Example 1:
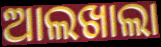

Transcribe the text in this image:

ଆଲଖାଲା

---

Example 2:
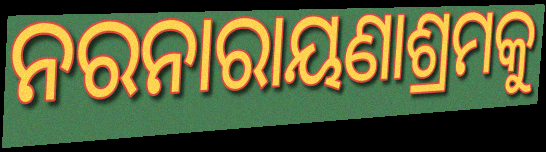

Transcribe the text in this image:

ନରନାରାୟଣାଶ୍ରମକୁ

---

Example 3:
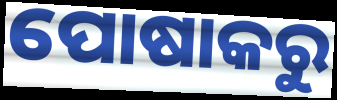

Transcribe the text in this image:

ପୋଷାକରୁ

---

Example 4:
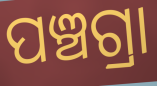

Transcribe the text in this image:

ପଞ୍ଚଗ୍ରା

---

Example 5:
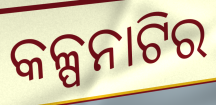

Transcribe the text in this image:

କଳ୍ପନାଟିର